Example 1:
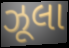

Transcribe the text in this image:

ઝૂલા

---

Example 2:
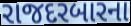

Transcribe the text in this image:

રાજદરબારના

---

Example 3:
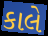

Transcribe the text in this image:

કાલે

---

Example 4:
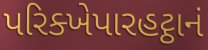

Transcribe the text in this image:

પરિક્ખેપારહટ્ઠાનં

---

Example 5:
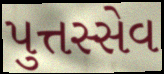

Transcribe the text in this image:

પુત્તસ્સેવ